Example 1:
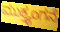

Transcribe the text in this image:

ಮುಕ್ತ್ಯಂಗನೆ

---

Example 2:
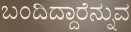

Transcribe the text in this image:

ಬಂದಿದ್ದಾರೆನ್ನುವ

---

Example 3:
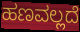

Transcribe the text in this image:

ಹಣವಲ್ಲದೆ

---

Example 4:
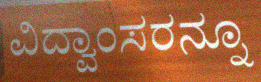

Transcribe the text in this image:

ವಿದ್ವಾಂಸರನ್ನೂ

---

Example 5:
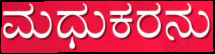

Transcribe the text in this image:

ಮಧುಕರನು